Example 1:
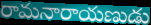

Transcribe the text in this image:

రామనారాయణుడు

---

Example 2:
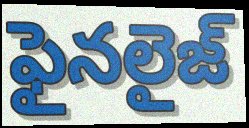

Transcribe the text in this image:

ఫైనలైజ్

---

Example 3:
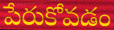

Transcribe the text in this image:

పేరుకోవడం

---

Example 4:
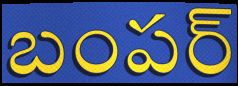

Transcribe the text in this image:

బంపర్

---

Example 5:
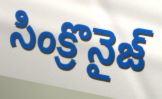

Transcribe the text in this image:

సింక్రొనైజ్